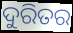
ଦୁରିତର